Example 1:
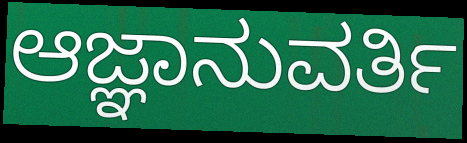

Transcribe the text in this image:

ಆಜ್ಞಾನುವರ್ತಿ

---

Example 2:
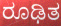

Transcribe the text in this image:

ರೂಢಿತ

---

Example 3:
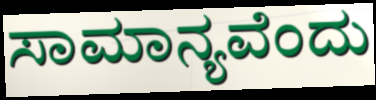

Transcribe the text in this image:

ಸಾಮಾನ್ಯವೆಂದು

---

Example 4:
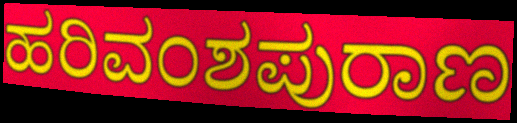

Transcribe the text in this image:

ಹರಿವಂಶಪುರಾಣ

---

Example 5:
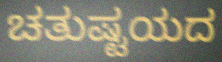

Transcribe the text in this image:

ಚತುಷ್ಟಯದ